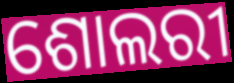
ଶୋଲରୀ